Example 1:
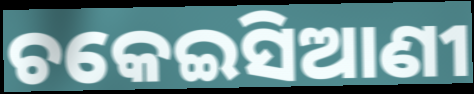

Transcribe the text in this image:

ଚକେଇସିଆଣୀ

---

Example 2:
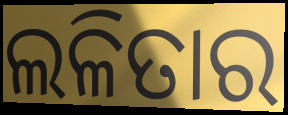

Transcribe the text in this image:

ଲଳିତାର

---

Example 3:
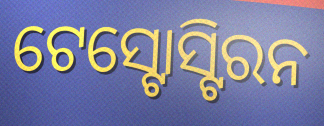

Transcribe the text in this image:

ଟେସ୍ଟୋସ୍ଟିରନ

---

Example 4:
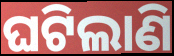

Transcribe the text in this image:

ଘଟିଲାଣି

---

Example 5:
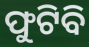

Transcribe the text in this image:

ଫୁଟିବି